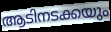
ആടിനടക്കയും